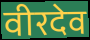
वीरदेव